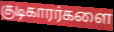
குடிகாரர்களை